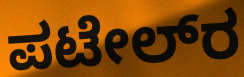
ಪಟೇಲ್‌ರ